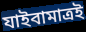
যাইবামাত্রই